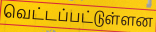
வெட்டப்பட்டுள்ளன